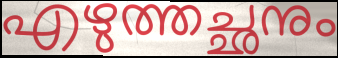
എഴുത്തച്ഛനും